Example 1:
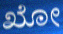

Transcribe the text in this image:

ಖೋ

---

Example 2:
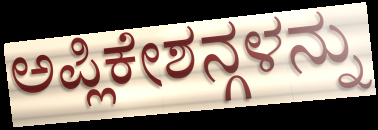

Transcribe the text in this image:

ಅಪ್ಲಿಕೇಶನ್ಗಳನ್ನು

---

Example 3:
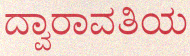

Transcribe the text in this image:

ದ್ವಾರಾವತಿಯ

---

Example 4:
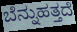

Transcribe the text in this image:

ಬೆನ್ನುಹತ್ತದೆ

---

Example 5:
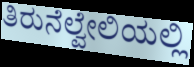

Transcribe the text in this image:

ತಿರುನೆಲ್ವೇಲಿಯಲ್ಲಿ